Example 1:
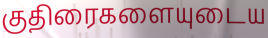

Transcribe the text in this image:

குதிரைகளையுடைய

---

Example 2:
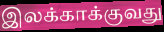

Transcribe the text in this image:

இலக்காக்குவது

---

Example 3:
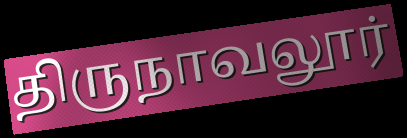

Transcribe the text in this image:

திருநாவலூர்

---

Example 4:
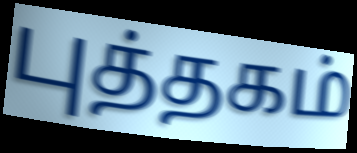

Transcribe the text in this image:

புத்தகம்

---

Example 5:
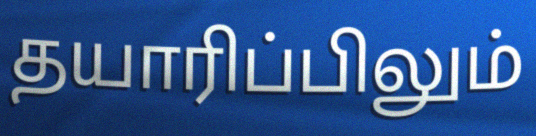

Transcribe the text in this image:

தயாரிப்பிலும்